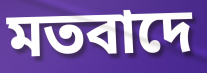
মতবাদে